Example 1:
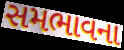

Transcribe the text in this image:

સમભાવના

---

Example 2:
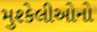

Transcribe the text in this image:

મુશ્કેલીઓનો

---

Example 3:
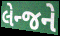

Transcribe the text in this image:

લેન્જને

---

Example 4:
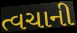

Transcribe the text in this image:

ત્વચાની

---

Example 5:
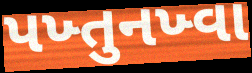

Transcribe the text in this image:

પખ્તુનખ્વા